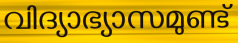
വിദ്യാഭ്യാസമുണ്ട്